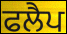
ਫਲੈਪ